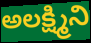
అలక్ష్మిని